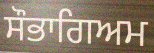
ਸੌਭਾਗਿਅਮ